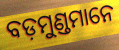
ବଡ଼ମୁଣ୍ଡମାନେ